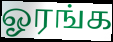
ஓரங்க